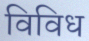
विविध